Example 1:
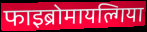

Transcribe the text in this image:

फाइब्रोमायल्गिया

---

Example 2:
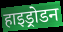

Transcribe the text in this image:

हाइड्रोडन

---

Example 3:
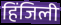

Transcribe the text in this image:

हिंजिली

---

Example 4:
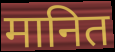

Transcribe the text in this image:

मानित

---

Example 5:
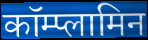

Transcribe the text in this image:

कॉम्प्लामिन